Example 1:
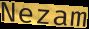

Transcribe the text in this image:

Nezam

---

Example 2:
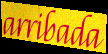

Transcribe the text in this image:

arribada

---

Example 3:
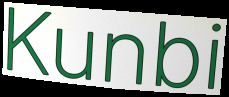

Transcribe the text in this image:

Kunbi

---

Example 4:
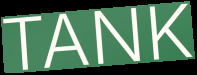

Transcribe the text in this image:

TANK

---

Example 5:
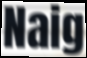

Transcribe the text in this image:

Naig